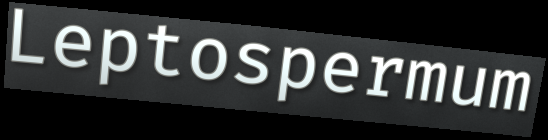
Leptospermum